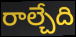
రాల్చేది